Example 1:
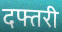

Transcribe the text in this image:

दफ्तरी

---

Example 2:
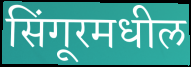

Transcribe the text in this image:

सिंगूरमधील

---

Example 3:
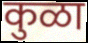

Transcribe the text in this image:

कुळा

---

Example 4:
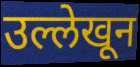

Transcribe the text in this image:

उल्लेखून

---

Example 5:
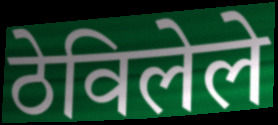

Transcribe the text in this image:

ठेविलेले